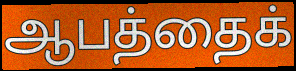
ஆபத்தைக்